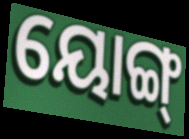
ୟୋଙ୍ଗ୍